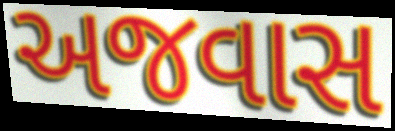
અજવાસ